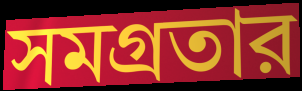
সমগ্রতার